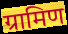
ग्रामिण